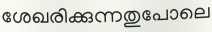
ശേഖരിക്കുന്നതുപോലെ